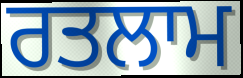
ਰਤਲਾਮ